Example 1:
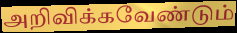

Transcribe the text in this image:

அறிவிக்கவேண்டும்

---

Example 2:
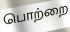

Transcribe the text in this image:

பொற்றை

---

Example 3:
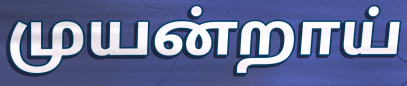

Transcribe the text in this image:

முயன்றாய்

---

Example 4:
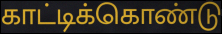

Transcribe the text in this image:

காட்டிக்கொண்டு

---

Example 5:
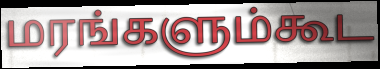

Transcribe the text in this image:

மரங்களும்கூட